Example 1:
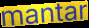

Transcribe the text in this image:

mantar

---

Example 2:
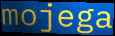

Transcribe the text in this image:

mojega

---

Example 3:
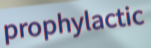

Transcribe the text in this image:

prophylactic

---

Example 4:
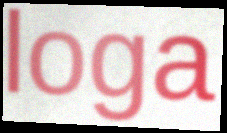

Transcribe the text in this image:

loga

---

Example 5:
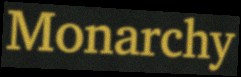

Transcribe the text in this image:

Monarchy